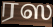
ரஸ